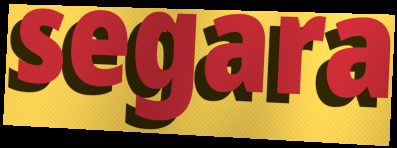
segara